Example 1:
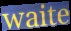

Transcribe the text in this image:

waite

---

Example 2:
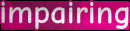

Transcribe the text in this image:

impairing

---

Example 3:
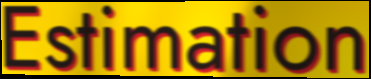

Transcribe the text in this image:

Estimation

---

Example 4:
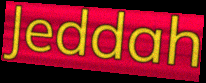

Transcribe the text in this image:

Jeddah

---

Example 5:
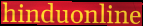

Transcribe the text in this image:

hinduonline